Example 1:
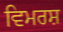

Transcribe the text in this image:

ਵਿਮਰਸ਼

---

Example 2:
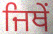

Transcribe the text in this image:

ਜਿਥੇਂ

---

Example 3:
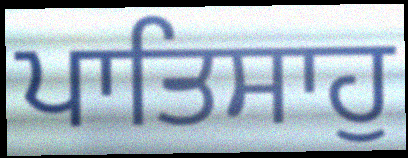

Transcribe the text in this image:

ਪਾਤਿਸਾਹੁ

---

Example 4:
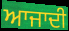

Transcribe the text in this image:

ਆਜਾਦੀ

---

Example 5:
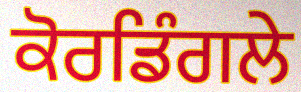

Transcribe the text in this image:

ਕੋਰਡਿੰਗਲੇ